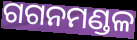
ଗଗନମଣ୍ଡଳ